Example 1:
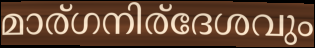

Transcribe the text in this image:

മാര്ഗനിര്ദേശവും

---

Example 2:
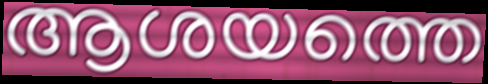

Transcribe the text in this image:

ആശയത്തെ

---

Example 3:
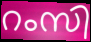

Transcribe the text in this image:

റംസി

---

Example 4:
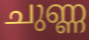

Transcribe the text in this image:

ചുണ്ണ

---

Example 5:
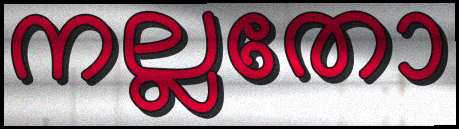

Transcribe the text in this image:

നല്ലതോ